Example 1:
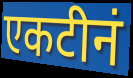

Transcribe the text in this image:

एकटीनं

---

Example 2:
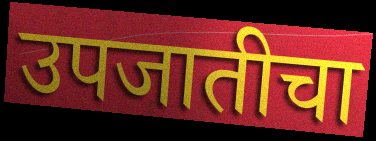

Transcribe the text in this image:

उपजातीचा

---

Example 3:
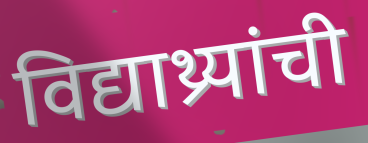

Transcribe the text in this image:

विद्याथ्र्यांची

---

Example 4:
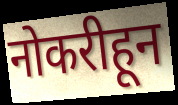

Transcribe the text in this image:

नोकरीहून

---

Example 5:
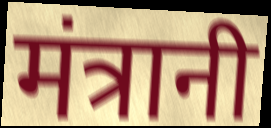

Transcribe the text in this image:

मंत्रानी